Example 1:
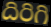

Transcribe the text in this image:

దిరిగి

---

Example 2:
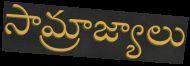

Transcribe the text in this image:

సామ్రాజ్యాలు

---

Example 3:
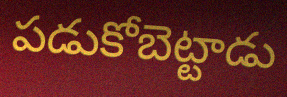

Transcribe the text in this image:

పడుకోబెట్టాడు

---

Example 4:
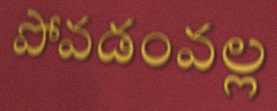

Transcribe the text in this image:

పోవడంవల్ల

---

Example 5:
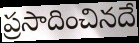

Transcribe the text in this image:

ప్రసాదించినదే